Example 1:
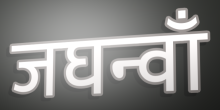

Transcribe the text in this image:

जघन्वाँ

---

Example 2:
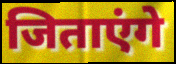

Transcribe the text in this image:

जिताएंगे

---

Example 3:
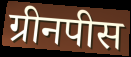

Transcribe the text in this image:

ग्रीनपीस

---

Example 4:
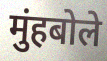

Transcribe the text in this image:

मुंहबोले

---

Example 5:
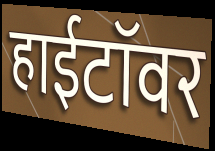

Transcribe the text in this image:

हाईटॉवर